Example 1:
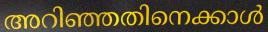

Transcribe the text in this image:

അറിഞ്ഞതിനെക്കാൾ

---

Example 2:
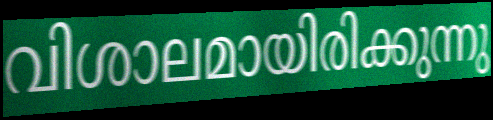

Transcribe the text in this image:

വിശാലമായിരിക്കുന്നു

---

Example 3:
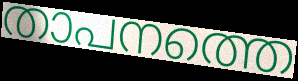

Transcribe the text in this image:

താപനത്തെ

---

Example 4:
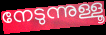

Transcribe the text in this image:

നേടുന്നുള്ളൂ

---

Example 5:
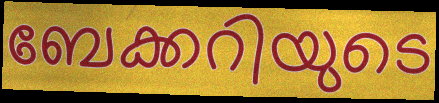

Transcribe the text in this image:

ബേക്കറിയുടെ